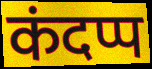
कंदप्प